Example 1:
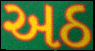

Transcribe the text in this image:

અઠ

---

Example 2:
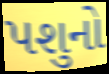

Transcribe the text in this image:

પશુનો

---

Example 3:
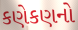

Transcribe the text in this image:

કણેકણનો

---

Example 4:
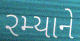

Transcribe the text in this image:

રમ્યાને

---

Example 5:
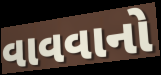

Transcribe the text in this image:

વાવવાનો